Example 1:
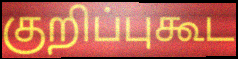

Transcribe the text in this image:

குறிப்புகூட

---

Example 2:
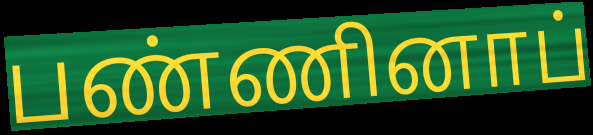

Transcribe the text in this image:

பண்ணினாப்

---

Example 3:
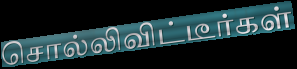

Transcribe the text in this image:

சொல்லிவிட்டீர்கள்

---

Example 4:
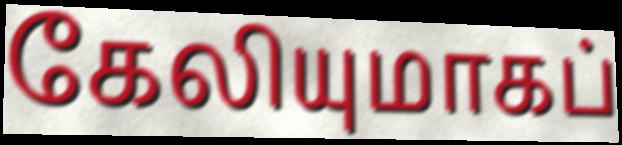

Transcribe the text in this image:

கேலியுமாகப்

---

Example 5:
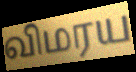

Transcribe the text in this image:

விமரய